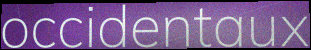
occidentaux